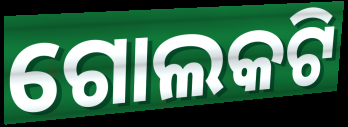
ଗୋଲକଟି